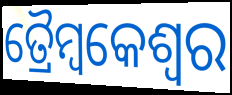
ତ୍ରୈମ୍ବକେଶ୍ୱର